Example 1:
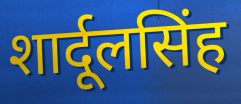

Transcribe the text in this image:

शार्दूलसिंह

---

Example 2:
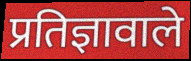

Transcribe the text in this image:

प्रतिज्ञावाले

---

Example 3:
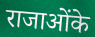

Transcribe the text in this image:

राजाओंके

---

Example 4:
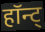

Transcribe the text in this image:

हॉन्ट्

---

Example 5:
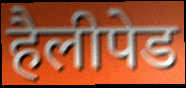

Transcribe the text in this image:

हैलीपेड